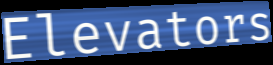
Elevators